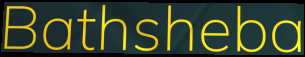
Bathsheba